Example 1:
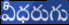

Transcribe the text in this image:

వీధరుగు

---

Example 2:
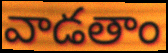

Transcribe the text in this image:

వాడతాం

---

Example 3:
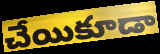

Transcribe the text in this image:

చేయికూడా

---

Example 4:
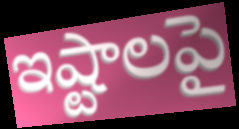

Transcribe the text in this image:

ఇష్టాలపై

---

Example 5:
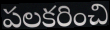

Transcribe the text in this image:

పలకరించి